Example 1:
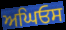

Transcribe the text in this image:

ਅਘਿਓਸ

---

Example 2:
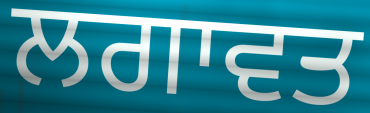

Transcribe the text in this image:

ਲਗਾਵਤ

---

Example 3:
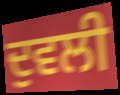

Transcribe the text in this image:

ਦੁਵਲੀ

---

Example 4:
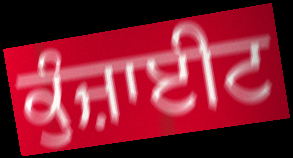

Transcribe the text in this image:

ਕੁੰਜ਼ਾਈਟ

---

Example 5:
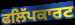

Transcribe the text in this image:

ਫਲਿੱਪਕਾਰਟ